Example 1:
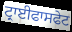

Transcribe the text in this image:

ਟ੍ਰਾਈਫਾਸਫੇਟ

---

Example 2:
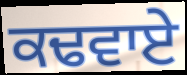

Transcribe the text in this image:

ਕਢਵਾਏ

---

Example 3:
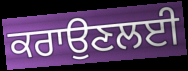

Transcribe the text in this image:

ਕਰਾਉਣਲਈ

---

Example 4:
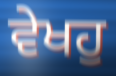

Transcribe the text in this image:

ਵੇਖਹੁ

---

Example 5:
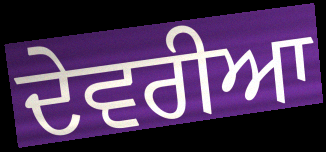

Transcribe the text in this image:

ਦੇਵਰੀਆ